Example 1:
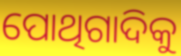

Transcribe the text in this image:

ପୋଥିଗାଦିକୁ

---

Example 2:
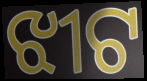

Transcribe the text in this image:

ଝୀଟ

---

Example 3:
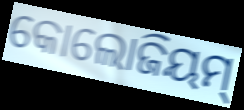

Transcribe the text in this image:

କୋଲୋଜିୟମ୍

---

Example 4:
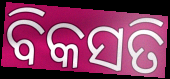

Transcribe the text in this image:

ବିକସତି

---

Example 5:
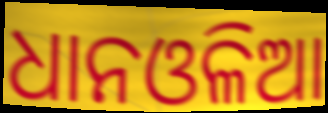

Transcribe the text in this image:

ଧାନଓଳିଆ